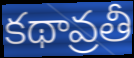
కథావ్రతీ